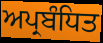
ਅਪ੍ਰਬੰਧਿਤ